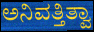
ಅನಿವತ್ತಿತ್ವಾ